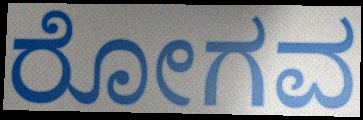
ರೋಗವ